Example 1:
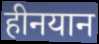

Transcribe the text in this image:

हीनयान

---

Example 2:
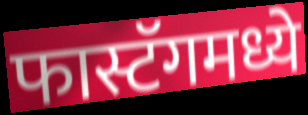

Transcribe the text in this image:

फास्टॅगमध्ये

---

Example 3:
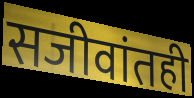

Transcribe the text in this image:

सजीवांतही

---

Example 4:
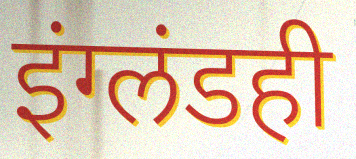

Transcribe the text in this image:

इंग्लंडही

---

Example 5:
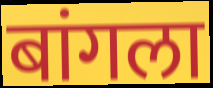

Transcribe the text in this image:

बांगला